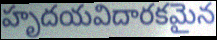
హృదయవిదారకమైన